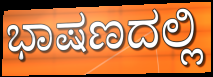
ಭಾಷಣದಲ್ಲಿ